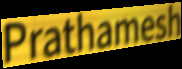
Prathamesh